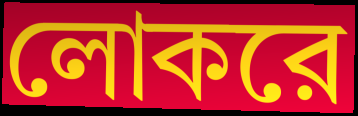
লোকরে